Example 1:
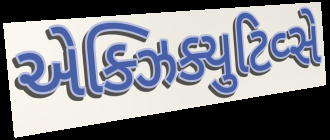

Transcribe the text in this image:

એક્ઝિક્યુટિવ્સે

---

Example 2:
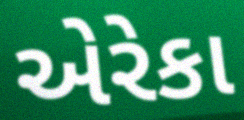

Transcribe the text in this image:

એરેકા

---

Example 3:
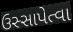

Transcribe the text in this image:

ઉસ્સાપેત્વા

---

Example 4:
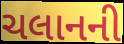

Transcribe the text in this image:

ચલાનની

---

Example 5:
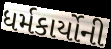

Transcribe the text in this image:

ધર્મકાર્યોની